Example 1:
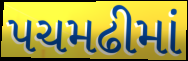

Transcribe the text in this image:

પચમઢીમાં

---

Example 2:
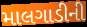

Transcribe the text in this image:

માલગાડીની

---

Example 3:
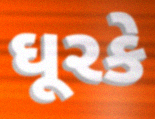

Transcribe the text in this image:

ઘૂરકે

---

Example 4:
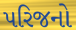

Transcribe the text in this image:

પરિજનો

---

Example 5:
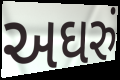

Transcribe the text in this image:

અઘરું